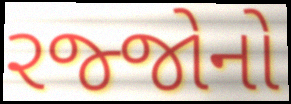
રજ્જોનો